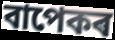
বাপেকৰ